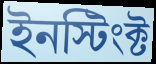
ইনস্টিংক্ট